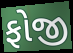
ફોજી